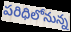
పరిధిలోనున్న